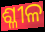
ଶ୍ଳୀଳ